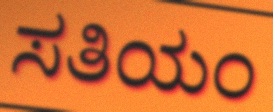
ಸತಿಯಂ